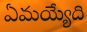
ఏమయ్యేది